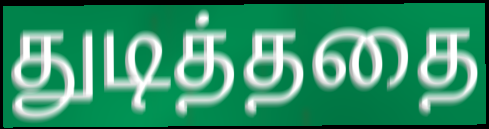
துடித்ததை